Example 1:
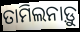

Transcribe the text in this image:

ତାମିଲନାଡ଼ୁ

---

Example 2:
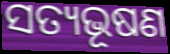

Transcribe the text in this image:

ସତ୍ୟଭୂଷଣ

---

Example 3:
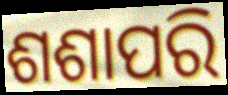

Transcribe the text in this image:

ଶଶାପରି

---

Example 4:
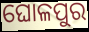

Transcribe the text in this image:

ଘୋଳପୁର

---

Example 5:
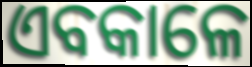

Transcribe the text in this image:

ଏବକାଳେ